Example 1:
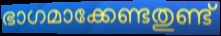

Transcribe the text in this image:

ഭാഗമാക്കേണ്ടതുണ്ട്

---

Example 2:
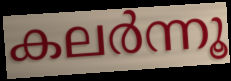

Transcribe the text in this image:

കലർന്നൂ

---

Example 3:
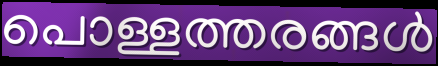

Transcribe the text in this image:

പൊള്ളത്തരങ്ങൾ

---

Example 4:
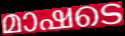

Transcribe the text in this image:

മാഷടെ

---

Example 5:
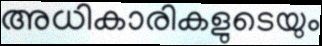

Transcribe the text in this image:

അധികാരികളുടെയും